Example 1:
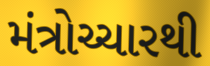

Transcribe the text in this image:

મંત્રોચ્ચારથી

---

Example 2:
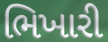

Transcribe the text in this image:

ભિખારી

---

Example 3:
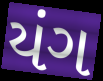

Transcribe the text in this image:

યંગ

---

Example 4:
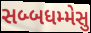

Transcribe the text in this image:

સબ્બધમ્મેસુ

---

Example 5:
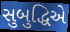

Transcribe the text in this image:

સુબુદ્ધિએ